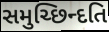
સમુચ્છિન્દતિ